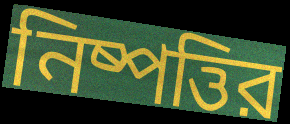
নিষ্পত্তির